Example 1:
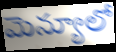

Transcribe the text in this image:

మెన్యూలో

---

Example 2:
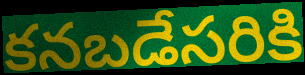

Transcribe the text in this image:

కనబడేసరికి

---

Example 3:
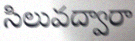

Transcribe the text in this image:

సిలువద్వారా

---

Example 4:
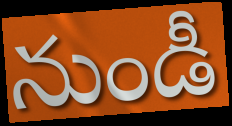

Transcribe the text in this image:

నుండీ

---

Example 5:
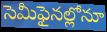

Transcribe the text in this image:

సెమీఫైనల్లోనూ